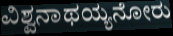
ವಿಶ್ವನಾಥಯ್ಯನೋರು